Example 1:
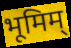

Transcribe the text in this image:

भूमिम्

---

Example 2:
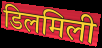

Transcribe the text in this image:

डिलमिली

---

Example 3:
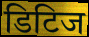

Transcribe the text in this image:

डिटिज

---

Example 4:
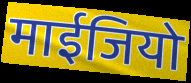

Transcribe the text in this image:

माईजियो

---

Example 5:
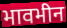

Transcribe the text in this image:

भावभीन